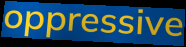
oppressive